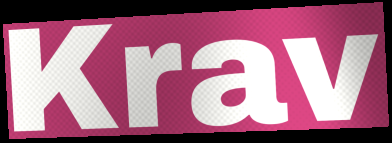
Krav